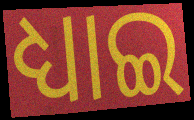
ଧ୍ୟାଇ